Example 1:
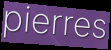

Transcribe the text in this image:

pierres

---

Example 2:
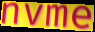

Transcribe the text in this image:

nvme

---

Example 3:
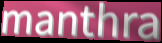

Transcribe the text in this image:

manthra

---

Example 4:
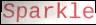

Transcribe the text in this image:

Sparkle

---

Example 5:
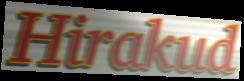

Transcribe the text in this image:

Hirakud